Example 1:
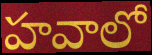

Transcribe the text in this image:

హవాలో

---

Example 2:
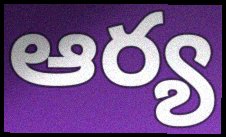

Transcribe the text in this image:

ఆర్య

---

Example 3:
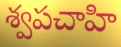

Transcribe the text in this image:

శ్వపచాహి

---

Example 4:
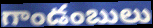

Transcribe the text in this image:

గాండంబులు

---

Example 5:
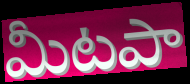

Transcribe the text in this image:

మీటపా